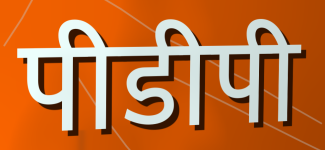
पीडीपी